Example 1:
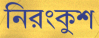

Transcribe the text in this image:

নিরংকুশ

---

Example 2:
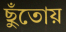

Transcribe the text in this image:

ছুঁতোয়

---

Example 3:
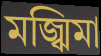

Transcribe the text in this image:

মজ্ঝিমা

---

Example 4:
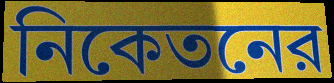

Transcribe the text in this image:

নিকেতনের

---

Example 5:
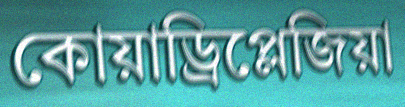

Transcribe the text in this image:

কোয়াড্রিপ্লেজিয়া